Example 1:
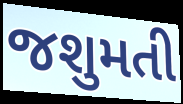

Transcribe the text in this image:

જશુમતી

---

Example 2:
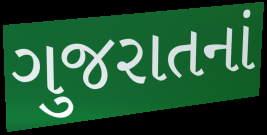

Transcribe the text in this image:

ગુજરાતનાં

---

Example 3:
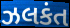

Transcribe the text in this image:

ઝલકંત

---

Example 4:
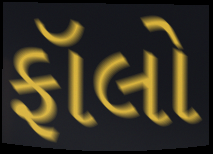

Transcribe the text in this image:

ફૉલો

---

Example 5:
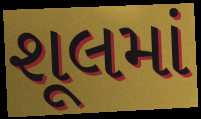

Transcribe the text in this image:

શૂલમાં